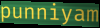
punniyam